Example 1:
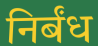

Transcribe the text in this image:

निर्बंध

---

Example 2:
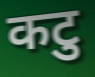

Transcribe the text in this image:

कटु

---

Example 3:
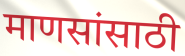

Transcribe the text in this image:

माणसांसाठी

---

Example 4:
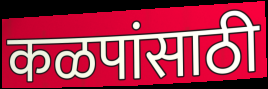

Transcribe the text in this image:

कळपांसाठी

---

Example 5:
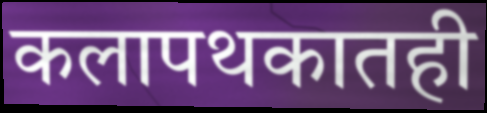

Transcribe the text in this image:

कलापथकातही